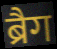
ब्रैग